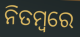
ନିତମ୍ବରେ